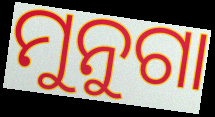
ମୁନୁଗା